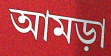
আমড়া